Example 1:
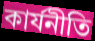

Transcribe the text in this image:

কার্যনীতি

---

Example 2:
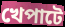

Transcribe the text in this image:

খেপাটে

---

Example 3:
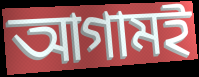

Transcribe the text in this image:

আগামই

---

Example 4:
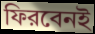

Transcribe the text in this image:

ফিরবেনই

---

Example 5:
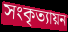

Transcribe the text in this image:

সংকৃত্যায়ন